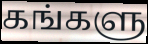
கங்களு